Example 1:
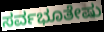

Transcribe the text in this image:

ಸರ್ವಭೂತೇಷು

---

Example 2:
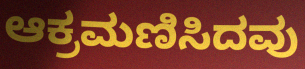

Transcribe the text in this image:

ಆಕ್ರಮಣಿಸಿದವು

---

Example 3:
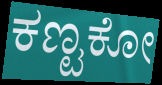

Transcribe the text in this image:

ಕಣ್ಟಕೋ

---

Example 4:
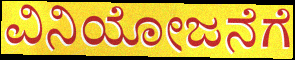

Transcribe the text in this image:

ವಿನಿಯೋಜನೆಗೆ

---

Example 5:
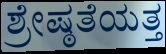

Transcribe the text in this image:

ಶ್ರೇಷ್ಠತೆಯತ್ತ